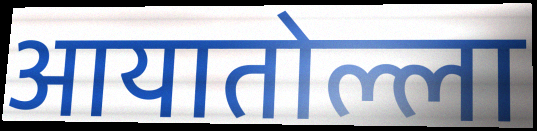
आयातोल्ला